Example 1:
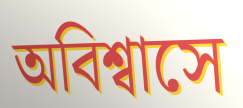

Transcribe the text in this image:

অবিশ্বাসে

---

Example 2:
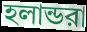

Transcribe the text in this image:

হলান্ডরা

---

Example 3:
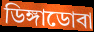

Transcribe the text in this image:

ডিঙ্গাডোবা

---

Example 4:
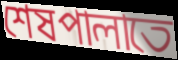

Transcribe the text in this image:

শেষপালাতে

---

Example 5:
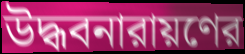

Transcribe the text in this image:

উদ্ধবনারায়ণের